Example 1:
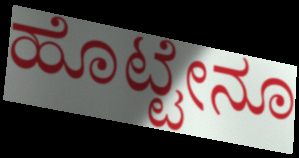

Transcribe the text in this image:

ಹೊಟ್ಟೇನೂ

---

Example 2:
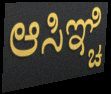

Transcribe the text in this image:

ಆಸಿಞ್ಚಿ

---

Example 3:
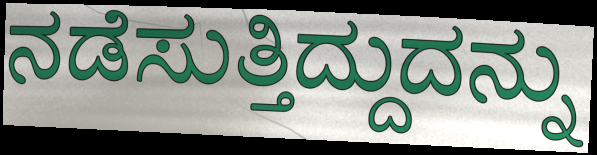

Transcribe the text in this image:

ನಡೆಸುತ್ತಿದ್ದುದನ್ನು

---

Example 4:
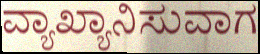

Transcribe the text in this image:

ವ್ಯಾಖ್ಯಾನಿಸುವಾಗ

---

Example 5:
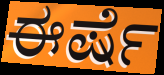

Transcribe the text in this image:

ಈರ್ಷೆ